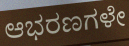
ಆಭರಣಗಳೇ